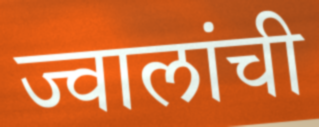
ज्वालांची